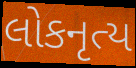
લોકનૃત્ય